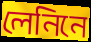
লেনিনে